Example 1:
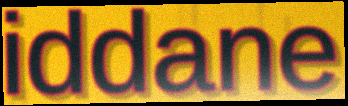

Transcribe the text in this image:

iddane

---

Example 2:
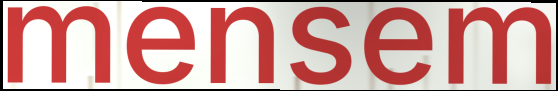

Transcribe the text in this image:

mensem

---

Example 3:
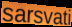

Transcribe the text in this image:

sarsvati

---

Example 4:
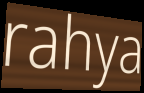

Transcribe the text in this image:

rahya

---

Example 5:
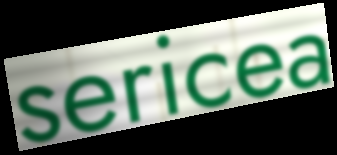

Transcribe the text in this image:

sericea